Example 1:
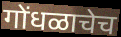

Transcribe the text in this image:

गोंधळाचेच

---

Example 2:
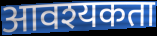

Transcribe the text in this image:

आवश्यकता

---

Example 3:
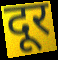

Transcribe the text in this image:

दूर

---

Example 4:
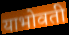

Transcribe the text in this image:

याभोवती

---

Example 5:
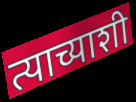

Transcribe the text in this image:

त्याच्याशी